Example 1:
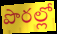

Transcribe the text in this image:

పొరల్లో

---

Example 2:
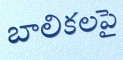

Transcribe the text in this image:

బాలికలపై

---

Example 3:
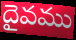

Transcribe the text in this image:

దైవము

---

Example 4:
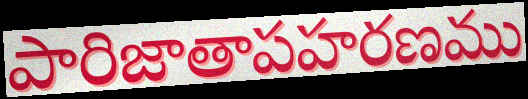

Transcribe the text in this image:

పారిజాతాపహరణము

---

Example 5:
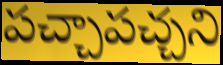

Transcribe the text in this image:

పచ్చాపచ్చని